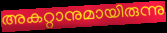
അകറ്റാനുമായിരുന്നു